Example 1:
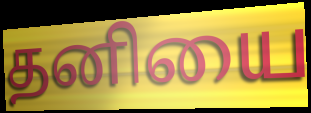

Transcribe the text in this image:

தனியை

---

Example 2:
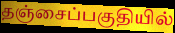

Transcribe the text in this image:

தஞ்சைப்பகுதியில்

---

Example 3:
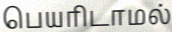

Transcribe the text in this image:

பெயரிடாமல்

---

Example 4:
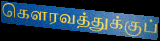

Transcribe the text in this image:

கௌரவத்துக்குப்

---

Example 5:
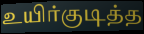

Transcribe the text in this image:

உயிர்குடித்த